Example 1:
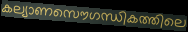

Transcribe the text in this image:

കല്യാണസൌഗന്ധികത്തിലെ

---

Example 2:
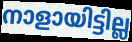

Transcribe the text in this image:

നാളായിട്ടില്ല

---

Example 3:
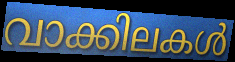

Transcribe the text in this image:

വാക്കിലകൾ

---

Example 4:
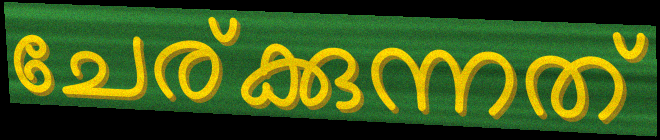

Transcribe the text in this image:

ചേര്ക്കുന്നത്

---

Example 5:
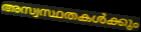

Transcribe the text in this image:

അസ്വസ്ഥതകൾക്കും